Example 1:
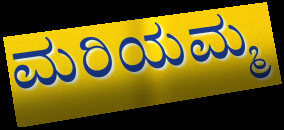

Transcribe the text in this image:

ಮರಿಯಮ್ಮ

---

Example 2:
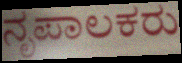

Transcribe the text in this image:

ನೃಪಾಲಕರು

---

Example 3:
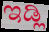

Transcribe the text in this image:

ಇಡ್ಲಿ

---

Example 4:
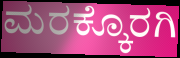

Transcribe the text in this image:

ಮರಕ್ಕೊರಗಿ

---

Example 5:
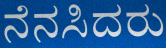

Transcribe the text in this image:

ನೆನಸಿದರು